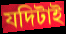
যদিটাই